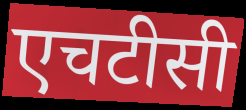
एचटीसी